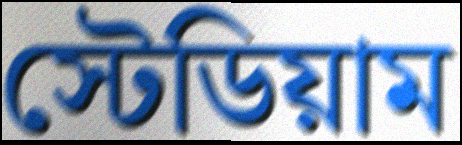
স্টেডিয়াম